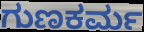
ಗುಣಕರ್ಮ